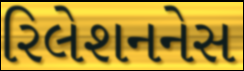
રિલેશનનેસ